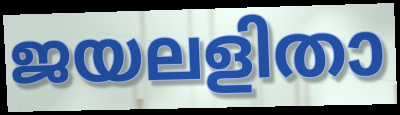
ജയലളിതാ